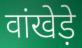
वांखेड़े